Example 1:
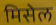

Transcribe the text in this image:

मिसेल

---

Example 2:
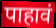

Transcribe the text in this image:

पाहावं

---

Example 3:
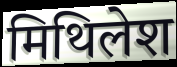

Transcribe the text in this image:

मिथिलेश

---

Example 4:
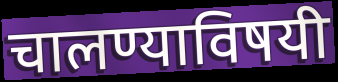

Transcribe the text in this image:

चालण्याविषयी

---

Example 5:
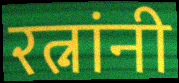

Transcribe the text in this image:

रत्नांनी